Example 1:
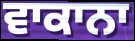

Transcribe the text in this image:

ਵਾਕਾਨਾ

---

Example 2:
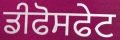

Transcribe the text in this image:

ਡੀਫੋਸਫੇਟ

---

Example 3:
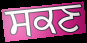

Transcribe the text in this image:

ਸਕਣ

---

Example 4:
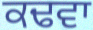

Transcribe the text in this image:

ਕਢਵਾ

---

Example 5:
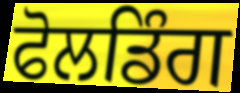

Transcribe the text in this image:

ਫੋਲਡਿੰਗ